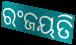
ରଂଜୟତି